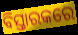
ବିସ୍ତାରକରେ